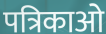
पत्रिकाओ